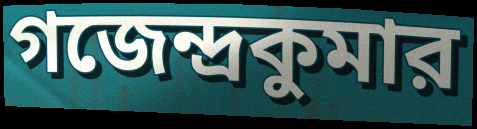
গজেন্দ্রকুমার